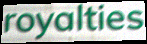
royalties